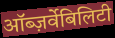
ऑब्ज़र्वेबिलिटी